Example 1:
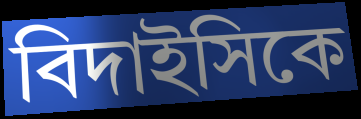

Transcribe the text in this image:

বিদাইসিকে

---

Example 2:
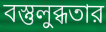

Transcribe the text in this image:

বস্তুলুব্ধতার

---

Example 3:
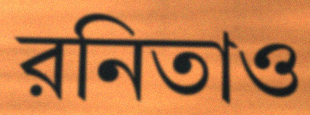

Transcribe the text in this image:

রনিতাও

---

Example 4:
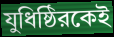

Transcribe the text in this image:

যুধিষ্ঠিরকেই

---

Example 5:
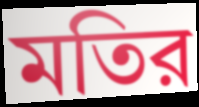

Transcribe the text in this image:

মতির